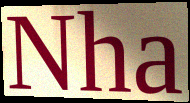
Nha